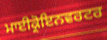
ਮਾਈਕ੍ਰੋਇਨਵਰਟਰ